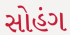
સોહંગ